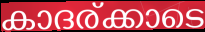
കാദര്ക്കാടെ